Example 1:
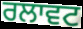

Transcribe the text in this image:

ਰਲਾਵਟ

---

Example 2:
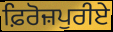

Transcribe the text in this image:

ਫ਼ਿਰੋਜ਼ਪੁਰੀਏ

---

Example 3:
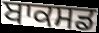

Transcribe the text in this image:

ਬਾਕਸਡ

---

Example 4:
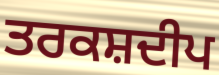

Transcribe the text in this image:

ਤਰਕਸ਼ਦੀਪ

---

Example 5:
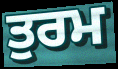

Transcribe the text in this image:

ਤੁਰਮ